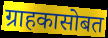
ग्राहकासोबत